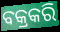
ବକ୍ରକରି